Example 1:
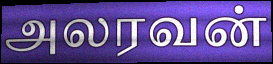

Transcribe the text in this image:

அலரவன்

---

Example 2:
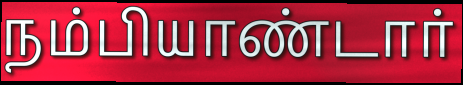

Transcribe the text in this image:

நம்பியாண்டார்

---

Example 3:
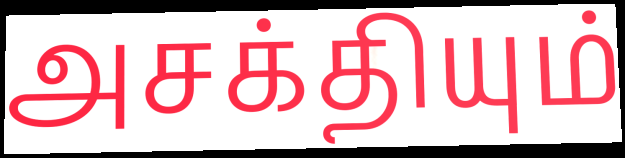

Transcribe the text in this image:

அசக்தியும்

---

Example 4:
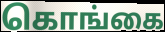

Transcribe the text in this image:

கொங்கை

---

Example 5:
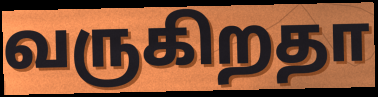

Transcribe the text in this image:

வருகிறதா